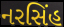
નરસિંહ